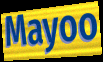
Mayoo